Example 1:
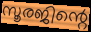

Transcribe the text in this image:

സൂരജിന്റെ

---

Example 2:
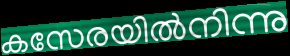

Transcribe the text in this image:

കസേരയിൽനിന്നു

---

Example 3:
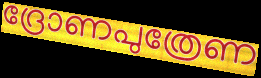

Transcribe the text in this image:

ദ്രോണപുത്രേണ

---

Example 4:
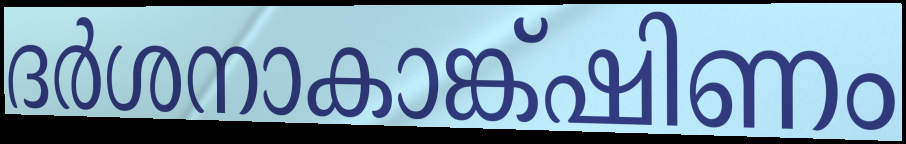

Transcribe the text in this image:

ദർശനാകാങ്ക്ഷിണം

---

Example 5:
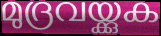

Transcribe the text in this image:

മുദ്രവയ്ക്കുക